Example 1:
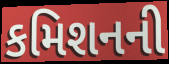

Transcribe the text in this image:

કમિશનની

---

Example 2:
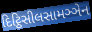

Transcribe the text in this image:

દિટ્ઠિસીલસામઞ્ઞેન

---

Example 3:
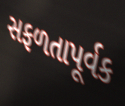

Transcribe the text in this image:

સફળતાપૂર્વક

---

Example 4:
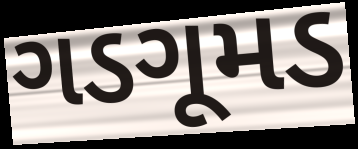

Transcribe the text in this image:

ગડગૂમડ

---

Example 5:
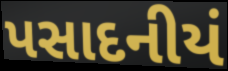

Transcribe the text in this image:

પસાદનીયં